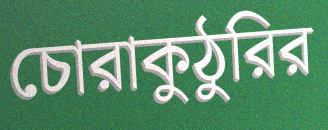
চোরাকুঠুরির